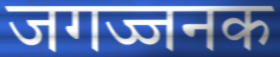
जगज्जनक